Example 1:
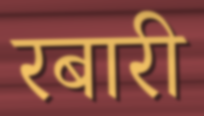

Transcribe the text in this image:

रबारी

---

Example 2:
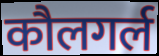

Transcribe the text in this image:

कौलगर्ल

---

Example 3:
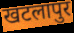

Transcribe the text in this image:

खटलापुर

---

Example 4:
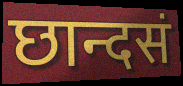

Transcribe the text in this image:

छान्दसं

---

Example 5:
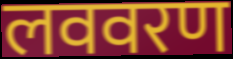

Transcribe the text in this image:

लववरण